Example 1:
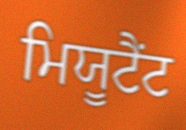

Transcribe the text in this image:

ਮਿਯੂਟੈਂਟ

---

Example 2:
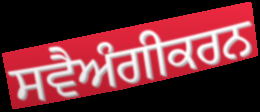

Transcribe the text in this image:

ਸਵੈਅੰਗੀਕਰਨ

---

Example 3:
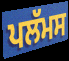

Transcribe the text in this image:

ਪਲੱਮਸ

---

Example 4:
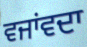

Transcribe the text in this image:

ਵਜਾਂਵਦਾ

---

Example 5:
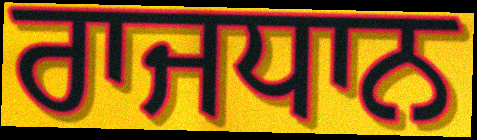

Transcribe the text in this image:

ਰਾਜਧਾਨ